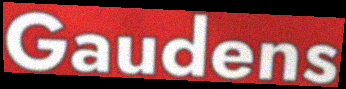
Gaudens